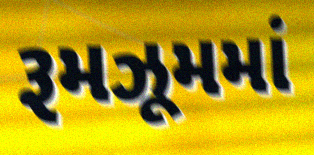
રૂમઝૂમમાં